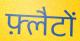
फ़्लैटों